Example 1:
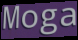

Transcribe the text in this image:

Moga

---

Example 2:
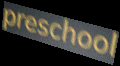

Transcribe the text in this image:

preschool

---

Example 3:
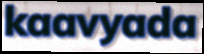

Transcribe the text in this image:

kaavyada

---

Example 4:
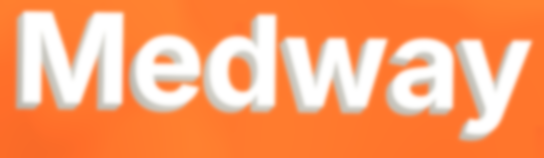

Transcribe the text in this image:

Medway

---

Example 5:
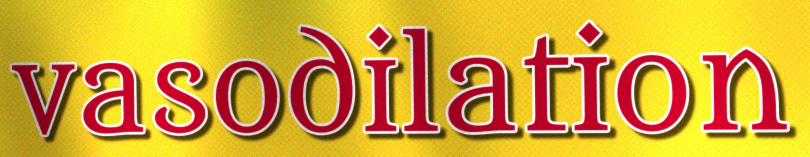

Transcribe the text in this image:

vasodilation